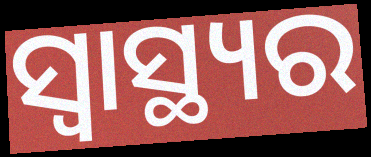
ସ୍ବାସ୍ଥ୍ୟର